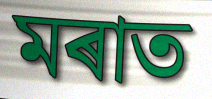
মৰাত